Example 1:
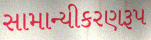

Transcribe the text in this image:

સામાન્યીકરણરૂપ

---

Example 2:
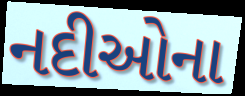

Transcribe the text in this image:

નદીઓના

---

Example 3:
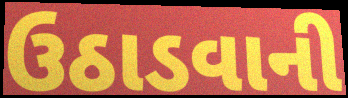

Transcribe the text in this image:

ઉઠાડવાની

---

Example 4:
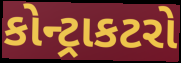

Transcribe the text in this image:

કોન્ટ્રાકટરો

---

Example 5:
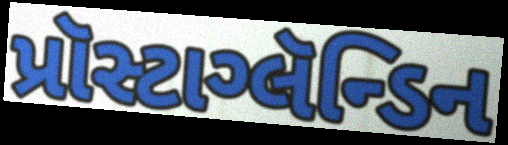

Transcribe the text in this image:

પ્રૉસ્ટાગ્લૅન્ડિન